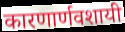
कारणार्णवशायी